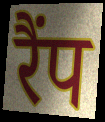
रैंप